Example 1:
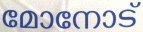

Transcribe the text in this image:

മോനോട്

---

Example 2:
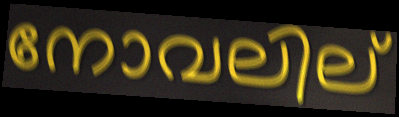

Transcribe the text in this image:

നോവലില്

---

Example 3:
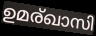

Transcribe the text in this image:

ഉമര്ഖാസി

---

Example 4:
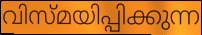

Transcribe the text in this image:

വിസ്മയിപ്പിക്കുന്ന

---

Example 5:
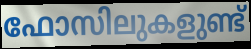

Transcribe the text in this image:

ഫോസിലുകളുണ്ട്